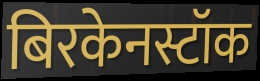
बिरकेनस्टॉक